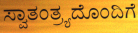
ಸ್ವಾತಂತ್ರ್ಯದೊಂದಿಗೆ